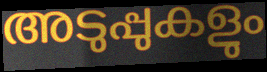
അടുപ്പുകളും